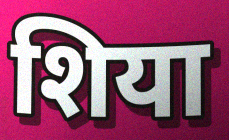
शिया